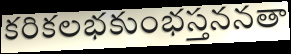
కరికలభకుంభస్తననతా